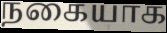
நகையாக